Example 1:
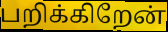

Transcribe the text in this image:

பறிக்கிறேன்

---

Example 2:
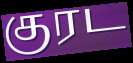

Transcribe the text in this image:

குரட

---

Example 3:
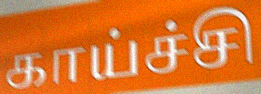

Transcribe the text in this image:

காய்ச்சி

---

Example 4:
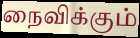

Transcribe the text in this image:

நைவிக்கும்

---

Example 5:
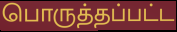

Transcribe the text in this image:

பொருத்தப்பட்ட